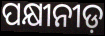
ପକ୍ଷୀନୀଡ଼